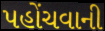
પહોંચવાની